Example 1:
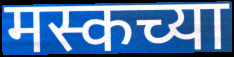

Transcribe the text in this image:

मस्कच्या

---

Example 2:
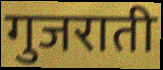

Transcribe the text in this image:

गुजराती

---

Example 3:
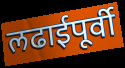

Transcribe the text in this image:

लढाईपूर्वी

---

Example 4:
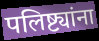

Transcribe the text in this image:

पलिष्ट्यांना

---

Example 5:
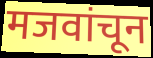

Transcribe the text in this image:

मजवांचून